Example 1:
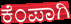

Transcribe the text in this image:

ಕೆಂಪಾಗಿ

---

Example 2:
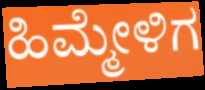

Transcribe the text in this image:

ಹಿಮ್ಮೇಳಿಗ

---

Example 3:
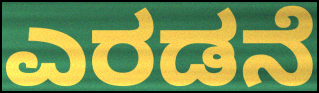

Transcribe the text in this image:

ಎರಡನೆ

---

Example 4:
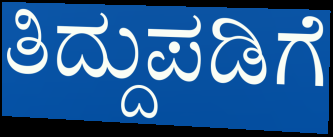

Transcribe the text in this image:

ತಿದ್ದುಪಡಿಗೆ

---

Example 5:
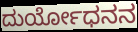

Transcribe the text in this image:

ದುರ್ಯೋಧನನ